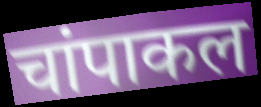
चांपाकल